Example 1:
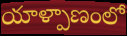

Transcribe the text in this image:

యాళ్పాణంలో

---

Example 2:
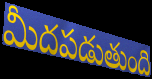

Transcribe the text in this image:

మీదపడుతుంది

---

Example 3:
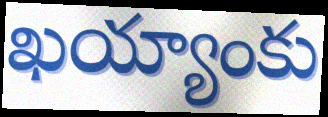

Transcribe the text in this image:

ఖయ్యాంకు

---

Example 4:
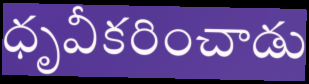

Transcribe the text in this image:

ధృవీకరించాడు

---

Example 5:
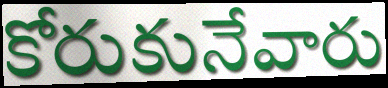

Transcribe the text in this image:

కోరుకునేవారు